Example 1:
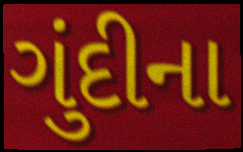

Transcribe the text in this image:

ગુંદીના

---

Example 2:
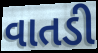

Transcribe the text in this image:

વાતડી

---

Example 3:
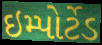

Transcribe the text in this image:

ઇમ્પોર્ટેડ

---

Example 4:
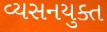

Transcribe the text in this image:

વ્યસનયુક્ત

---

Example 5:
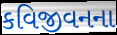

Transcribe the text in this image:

કવિજીવનના